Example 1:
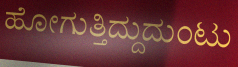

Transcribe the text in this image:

ಹೋಗುತ್ತಿದ್ದುದುಂಟು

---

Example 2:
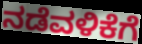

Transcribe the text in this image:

ನಡೆವಳಿಕೆಗೆ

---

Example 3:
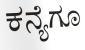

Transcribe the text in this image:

ಕನ್ಯೆಗೂ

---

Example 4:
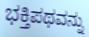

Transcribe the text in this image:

ಭಕ್ತಿಪಥವನ್ನು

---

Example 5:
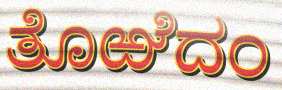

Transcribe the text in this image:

ತೊಱೆದಂ